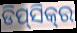
ଡିପ୍‌ସିକ୍‌ର